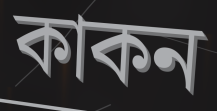
কাকন